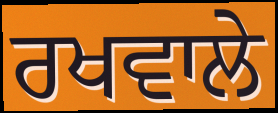
ਰਖਵਾਲੇ